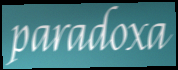
paradoxa